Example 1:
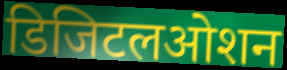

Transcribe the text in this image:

डिजिटलओशन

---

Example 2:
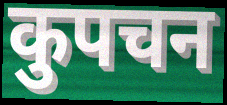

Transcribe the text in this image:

कुपचन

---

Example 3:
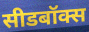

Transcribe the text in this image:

सीडबॉक्स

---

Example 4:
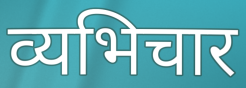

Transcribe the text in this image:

व्यभिचार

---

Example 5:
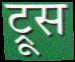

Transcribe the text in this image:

ट्रूस